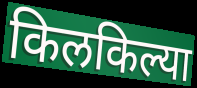
किलकिल्या